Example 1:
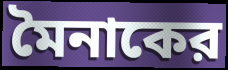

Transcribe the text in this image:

মৈনাকের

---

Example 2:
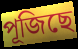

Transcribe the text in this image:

পূজিছে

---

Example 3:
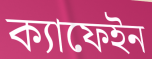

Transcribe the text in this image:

ক্যাফেইন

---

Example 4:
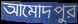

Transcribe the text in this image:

আমোদপুর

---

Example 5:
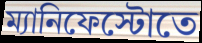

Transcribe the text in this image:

ম্যানিফেস্টোতে